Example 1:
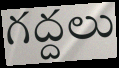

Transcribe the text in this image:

గద్దలు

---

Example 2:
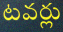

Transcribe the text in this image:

టవర్లు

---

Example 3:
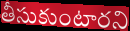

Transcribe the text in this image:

తీసుకుంటారని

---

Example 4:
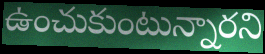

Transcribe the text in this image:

ఉంచుకుంటున్నారని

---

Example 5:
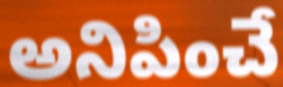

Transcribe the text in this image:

అనిపించే